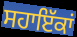
ਸਹਾਇੱਕਾਂ